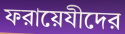
ফরায়েযীদের